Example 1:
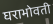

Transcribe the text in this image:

घराभोवती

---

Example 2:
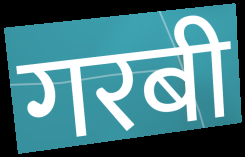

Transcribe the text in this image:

गरबी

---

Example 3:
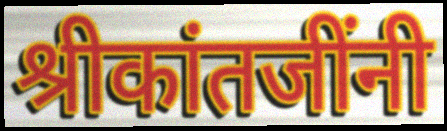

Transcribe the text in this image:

श्रीकांतजींनी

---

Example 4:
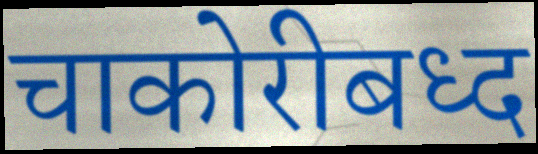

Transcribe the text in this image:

चाकोरीबध्द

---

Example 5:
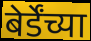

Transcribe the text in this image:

बेर्डेंच्या